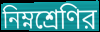
নিম্নশ্রেণির